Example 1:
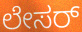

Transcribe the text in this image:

ಲೇಸರ್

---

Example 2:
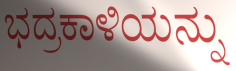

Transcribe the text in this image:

ಭದ್ರಕಾಳಿಯನ್ನು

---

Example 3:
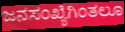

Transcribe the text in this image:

ಜನಸಂಖ್ಯೆಗಿಂತಲೂ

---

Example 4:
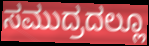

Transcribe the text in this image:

ಸಮುದ್ರದಲ್ಲೂ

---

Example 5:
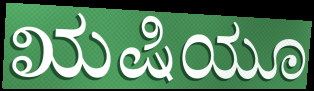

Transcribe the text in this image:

ಋಷಿಯೂ